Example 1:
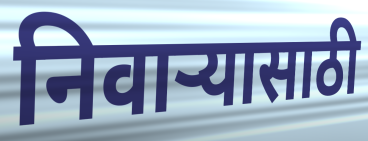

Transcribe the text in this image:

निवाऱ्यासाठी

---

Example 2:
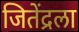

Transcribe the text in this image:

जितेंद्रला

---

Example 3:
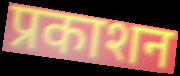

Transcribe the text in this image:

प्रकाशन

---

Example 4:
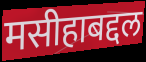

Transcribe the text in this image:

मसीहाबद्दल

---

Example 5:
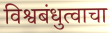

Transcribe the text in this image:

विश्वबंधुत्वाचा